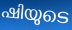
ഷിയുടെ